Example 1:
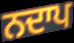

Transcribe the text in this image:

ਨਦਾਪ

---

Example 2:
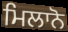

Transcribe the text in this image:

ਮਿਲਾਨੋ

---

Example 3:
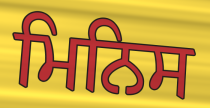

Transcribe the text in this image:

ਮਿਨਿਸ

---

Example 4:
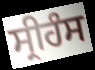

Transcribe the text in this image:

ਸ੍ਰੀਹੰਸ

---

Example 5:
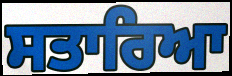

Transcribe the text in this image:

ਸਤਾਰਿਆ